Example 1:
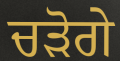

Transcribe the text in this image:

ਚੜੋਗੇ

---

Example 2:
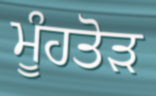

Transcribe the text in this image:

ਮੂੰਹਤੋੜ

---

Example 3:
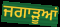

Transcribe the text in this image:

ਜਗਾੜੂਆਂ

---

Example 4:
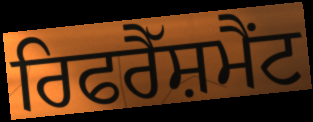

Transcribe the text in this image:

ਰਿਫਰੈੱਸ਼ਮੈਂਟ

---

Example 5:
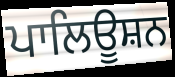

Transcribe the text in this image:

ਪਾਲਿਊਸ਼ਨ